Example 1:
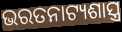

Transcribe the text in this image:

ଭରତନାଟ୍ୟଶାସ୍ତ୍ର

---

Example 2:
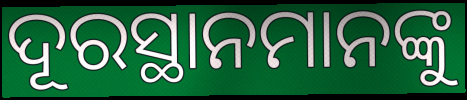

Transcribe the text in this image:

ଦୂରସ୍ଥାନମାନଙ୍କୁ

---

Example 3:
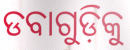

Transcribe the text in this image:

ଡବାଗୁଡ଼ିକୁ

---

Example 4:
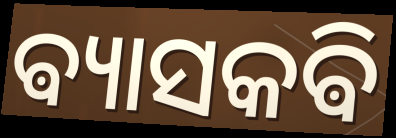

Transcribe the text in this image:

ଵ୍ୟାସକଵି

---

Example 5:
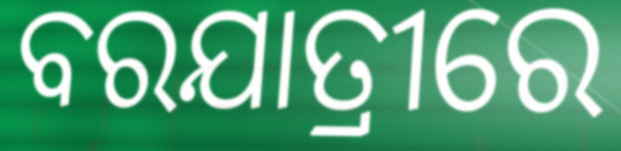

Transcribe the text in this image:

ବରଯାତ୍ରୀରେ